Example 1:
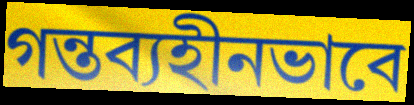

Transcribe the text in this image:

গন্তব্যহীনভাবে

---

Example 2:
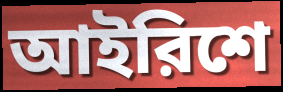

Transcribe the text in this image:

আইরিশে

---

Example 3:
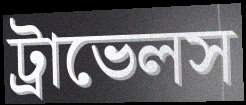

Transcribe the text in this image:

ট্রাভেলস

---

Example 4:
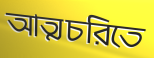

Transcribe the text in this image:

আত্মচরিতে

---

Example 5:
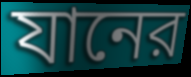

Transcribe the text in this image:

যানের